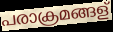
പരാക്രമങ്ങള്